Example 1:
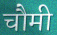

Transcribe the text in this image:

चौमी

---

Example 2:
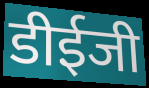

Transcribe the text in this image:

डीईजी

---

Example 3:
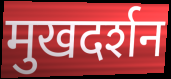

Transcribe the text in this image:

मुखदर्शन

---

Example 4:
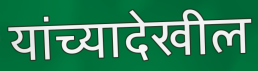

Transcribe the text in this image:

यांच्यादेखील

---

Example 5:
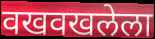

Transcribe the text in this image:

वखवखलेला